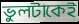
ভুলটাকেই